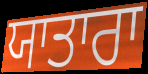
ਯਾਤਾਰਾ